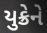
યુક્રેને